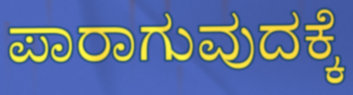
ಪಾರಾಗುವುದಕ್ಕೆ